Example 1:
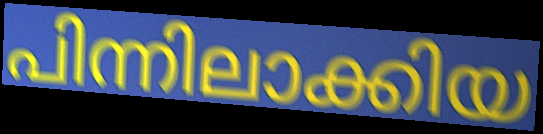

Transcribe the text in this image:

പിന്നിലാക്കിയ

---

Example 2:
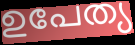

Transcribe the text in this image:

ഉപേത്യ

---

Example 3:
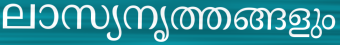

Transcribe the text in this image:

ലാസ്യനൃത്തങ്ങളും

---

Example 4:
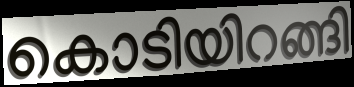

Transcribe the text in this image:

കൊടിയിറങ്ങി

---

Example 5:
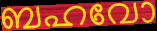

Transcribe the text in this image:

ബഹവോ